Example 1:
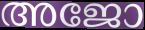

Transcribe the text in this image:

അജോ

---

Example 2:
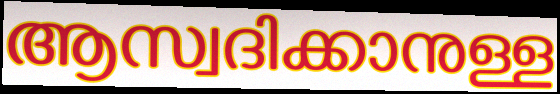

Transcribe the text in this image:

ആസ്വദിക്കാനുള്ള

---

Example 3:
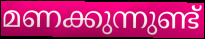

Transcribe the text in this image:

മണക്കുന്നുണ്ട്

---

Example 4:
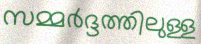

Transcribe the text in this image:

സമ്മർദ്ദത്തിലുള്ള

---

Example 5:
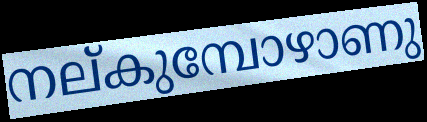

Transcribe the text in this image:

നല്കുമ്പോഴാണു